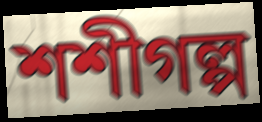
শশীগল্প